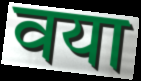
वया